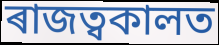
ৰাজত্বকালত